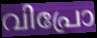
വിപ്രോ